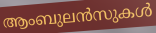
ആംബുലൻസുകൾ